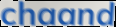
chaand